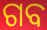
ଗବ